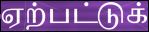
ஏற்பட்டுக்